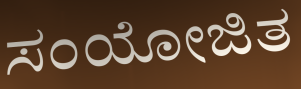
ಸಂಯೋಜಿತ